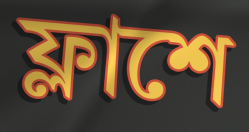
ফ্লাশে